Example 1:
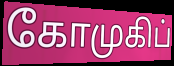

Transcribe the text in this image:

கோமுகிப்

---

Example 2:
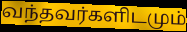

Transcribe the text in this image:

வந்தவர்களிடமும்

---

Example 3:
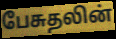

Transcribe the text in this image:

பேசுதலின்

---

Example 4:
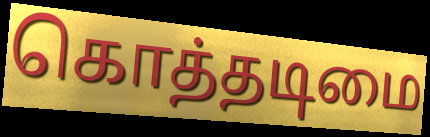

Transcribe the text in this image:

கொத்தடிமை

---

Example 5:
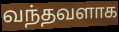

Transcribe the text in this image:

வந்தவளாக